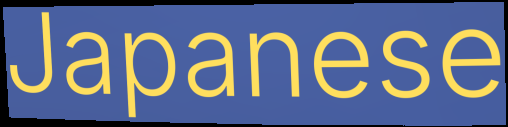
Japanese